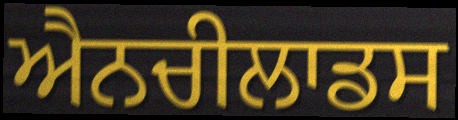
ਐਨਚੀਲਾਡਸ